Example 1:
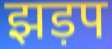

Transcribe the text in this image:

झड़प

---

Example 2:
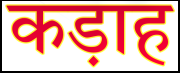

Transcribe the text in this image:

कड़ाह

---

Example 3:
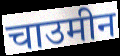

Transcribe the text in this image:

चाउमीन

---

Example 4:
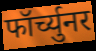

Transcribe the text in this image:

फॉर्च्युनर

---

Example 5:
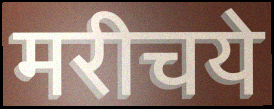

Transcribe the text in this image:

मरीचये